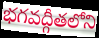
భగవద్గీతలోని